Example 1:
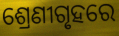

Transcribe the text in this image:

ଶ୍ରେଣୀଗୃହରେ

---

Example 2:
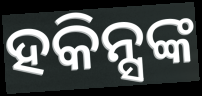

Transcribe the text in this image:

ହକିନ୍ସଙ୍କ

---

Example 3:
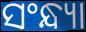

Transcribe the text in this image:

ସଂନ୍ଧ୍ଯା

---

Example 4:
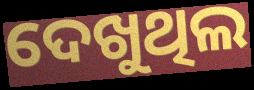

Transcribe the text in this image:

ଦେଖୁଥିଲ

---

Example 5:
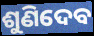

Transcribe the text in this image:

ଶୁଣିଦେବ